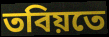
তবিয়তে